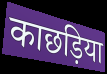
काछड़िया